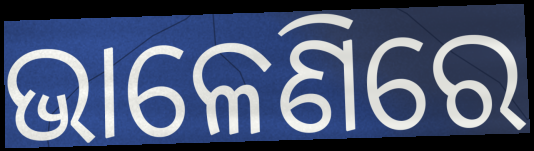
ଭାଳେଣିରେ